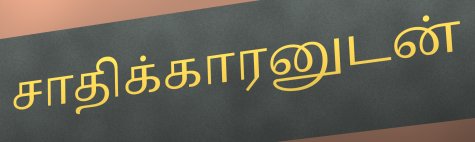
சாதிக்காரனுடன்